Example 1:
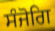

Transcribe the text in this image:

ਸੰਜੋਗਿ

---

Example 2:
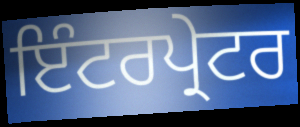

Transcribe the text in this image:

ਇੰਟਰਪ੍ਰੇਟਰ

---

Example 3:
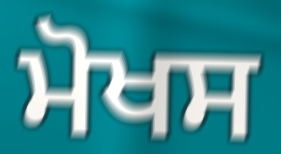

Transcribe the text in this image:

ਮੋਖਸ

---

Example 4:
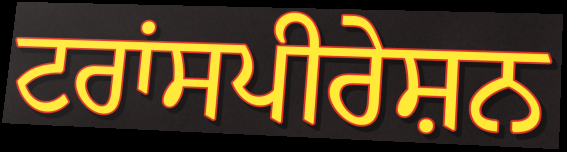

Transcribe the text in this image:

ਟਰਾਂਸਪੀਰੇਸ਼ਨ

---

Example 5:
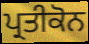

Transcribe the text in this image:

ਪ੍ਰਤੀਕੋਨ